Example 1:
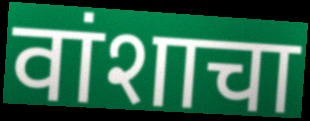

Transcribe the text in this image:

वांशाचा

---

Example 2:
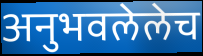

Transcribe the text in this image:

अनुभवलेलेच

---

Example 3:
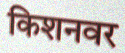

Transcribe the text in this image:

किशनवर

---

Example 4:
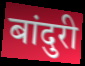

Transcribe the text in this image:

बांदुरी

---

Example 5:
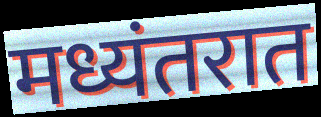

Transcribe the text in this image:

मध्यंतरात